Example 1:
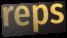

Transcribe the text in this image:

reps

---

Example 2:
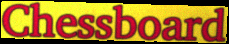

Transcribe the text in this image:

Chessboard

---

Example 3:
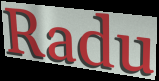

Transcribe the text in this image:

Radu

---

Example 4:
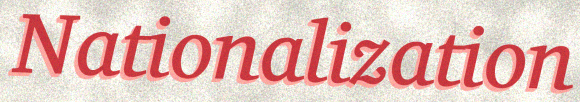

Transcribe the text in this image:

Nationalization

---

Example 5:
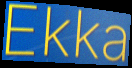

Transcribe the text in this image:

Ekka